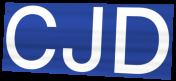
CJD